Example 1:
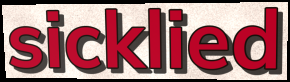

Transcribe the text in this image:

sicklied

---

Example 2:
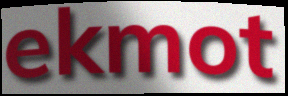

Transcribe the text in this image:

ekmot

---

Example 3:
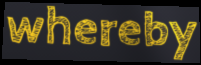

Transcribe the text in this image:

whereby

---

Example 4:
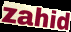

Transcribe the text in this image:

zahid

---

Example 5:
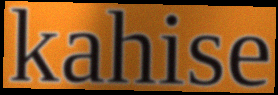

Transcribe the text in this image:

kahise